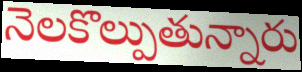
నెలకొల్పుతున్నారు